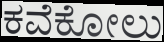
ಕವೆಕೋಲು